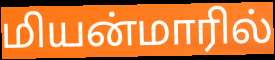
மியன்மாரில்